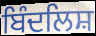
ਬਿੰਦਲਿਸ਼